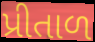
પ્રીતાળ